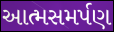
આત્મસમર્પણ